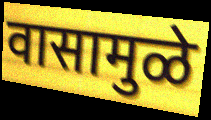
वासामुळे